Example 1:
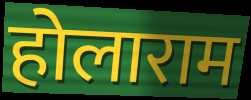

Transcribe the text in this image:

होलाराम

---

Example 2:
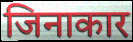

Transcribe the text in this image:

जिनाकार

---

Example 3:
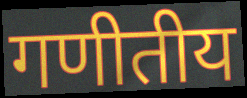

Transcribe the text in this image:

गणीतीय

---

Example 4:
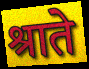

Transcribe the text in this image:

श्राते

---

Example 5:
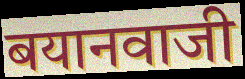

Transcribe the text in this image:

बयानवाजी